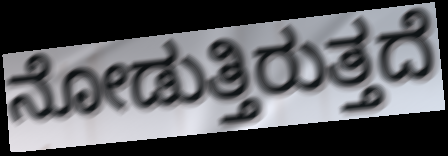
ನೋಡುತ್ತಿರುತ್ತದೆ